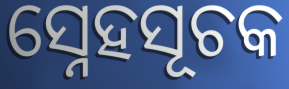
ସ୍ନେହସୂଚକ